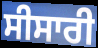
ਸੀਸਾਰੀ